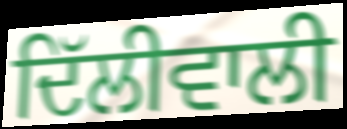
ਦਿੱਲੀਵਾਲੀ